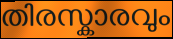
തിരസ്കാരവും